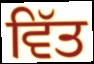
ਵਿੱਤ